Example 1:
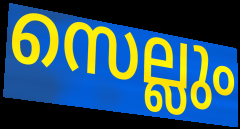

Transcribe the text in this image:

സെല്ലും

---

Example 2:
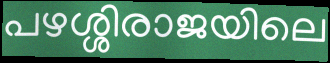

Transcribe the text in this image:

പഴശ്ശിരാജയിലെ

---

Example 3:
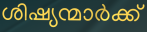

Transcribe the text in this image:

ശിഷ്യന്മാർക്ക്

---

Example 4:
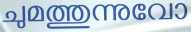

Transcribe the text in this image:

ചുമത്തുന്നുവോ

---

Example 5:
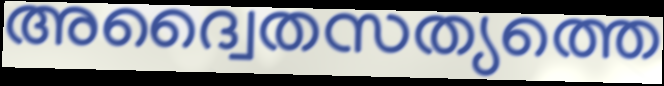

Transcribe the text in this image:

അദ്വൈതസത്യത്തെ